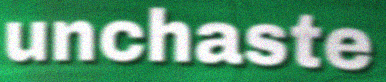
unchaste